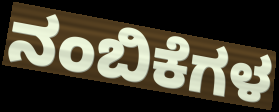
ನಂಬಿಕೆಗಳ